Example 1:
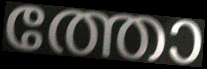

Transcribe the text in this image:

ത്തോ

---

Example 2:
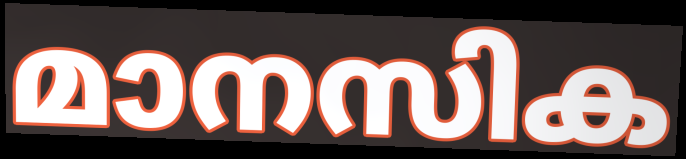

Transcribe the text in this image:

മാനസിക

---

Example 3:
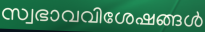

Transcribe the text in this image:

സ്വഭാവവിശേഷങ്ങൾ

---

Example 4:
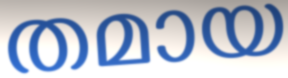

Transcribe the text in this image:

തമായ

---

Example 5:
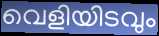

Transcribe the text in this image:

വെളിയിടവും